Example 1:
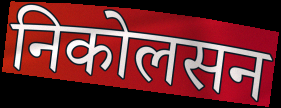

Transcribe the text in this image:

निकोलसन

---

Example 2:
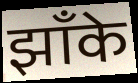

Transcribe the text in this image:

झाँके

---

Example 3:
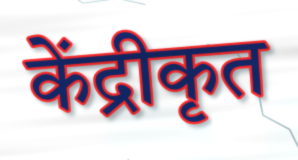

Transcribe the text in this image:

केंद्रीकृत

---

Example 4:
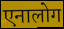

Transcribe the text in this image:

एनालोग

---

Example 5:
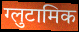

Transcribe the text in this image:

ग्लुटामिक